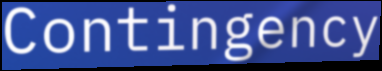
Contingency